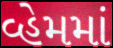
વ્હેમમાં